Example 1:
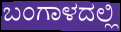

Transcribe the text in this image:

ಬಂಗಾಳದಲ್ಲಿ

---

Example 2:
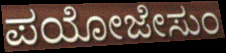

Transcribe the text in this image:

ಪಯೋಜೇಸುಂ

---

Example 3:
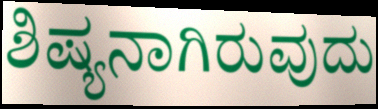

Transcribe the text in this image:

ಶಿಷ್ಯನಾಗಿರುವುದು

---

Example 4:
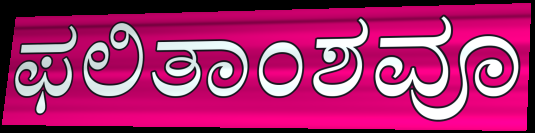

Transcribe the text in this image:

ಫಲಿತಾಂಶವೂ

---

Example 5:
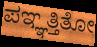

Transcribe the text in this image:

ಪಞ್ಞತ್ತಿತೋ